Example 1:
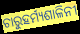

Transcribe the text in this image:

ଚାରୁହର୍ମ୍ୟଶାଳିନୀ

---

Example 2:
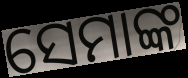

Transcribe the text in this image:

ସେମାଙ୍କ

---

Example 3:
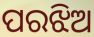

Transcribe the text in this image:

ପରଝିଅ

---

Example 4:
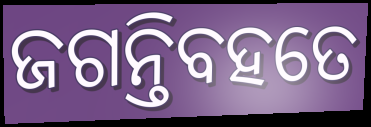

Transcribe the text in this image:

ଜଗନ୍ତିବହତେ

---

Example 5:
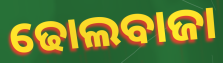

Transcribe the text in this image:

ଢୋଲବାଜା